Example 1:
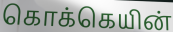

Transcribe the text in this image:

கொக்கெயின்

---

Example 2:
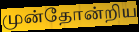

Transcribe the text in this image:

முன்தோன்றிய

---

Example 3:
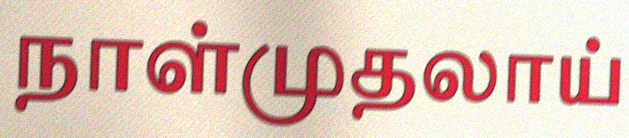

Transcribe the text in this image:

நாள்முதலாய்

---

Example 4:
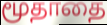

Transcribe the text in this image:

மூதாதை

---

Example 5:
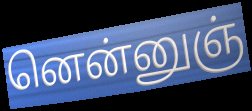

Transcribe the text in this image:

னென்னுஞ்